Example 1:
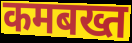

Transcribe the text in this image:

कमबख्त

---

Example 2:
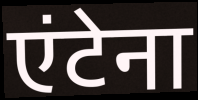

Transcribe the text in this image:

एंटेना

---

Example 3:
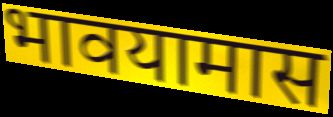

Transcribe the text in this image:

भावयामास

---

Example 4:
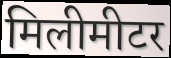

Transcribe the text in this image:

मिलीमीटर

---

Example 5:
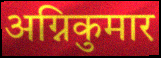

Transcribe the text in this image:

अग्निकुमार